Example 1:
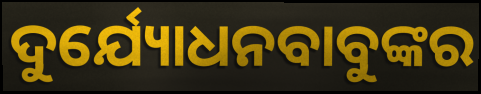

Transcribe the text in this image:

ଦୁର୍ଯ୍ୟୋଧନବାବୁଙ୍କର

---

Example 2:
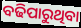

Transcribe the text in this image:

ବଢିପାରୁଥିବା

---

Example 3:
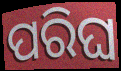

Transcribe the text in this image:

ପରିଘ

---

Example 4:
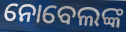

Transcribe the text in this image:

ନୋବେଲଙ୍କ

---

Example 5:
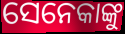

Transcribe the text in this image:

ସେନେକାଙ୍କୁ